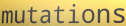
mutations